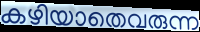
കഴിയാതെവരുന്ന